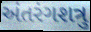
અંતરંગશત્રુ